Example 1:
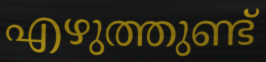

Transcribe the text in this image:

എഴുത്തുണ്ട്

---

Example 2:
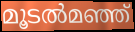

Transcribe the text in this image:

മൂടൽമഞ്ഞ്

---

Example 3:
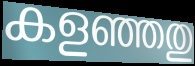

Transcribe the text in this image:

കളഞ്ഞതു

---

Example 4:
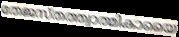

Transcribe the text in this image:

തേജസ്തത്ത്വാത്മികായൈ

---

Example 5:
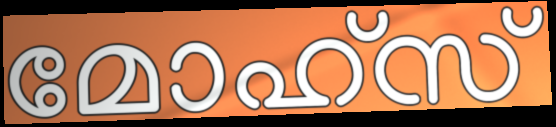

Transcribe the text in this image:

മോഹ്സ്